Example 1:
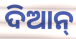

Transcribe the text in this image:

ଦିଆନ୍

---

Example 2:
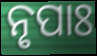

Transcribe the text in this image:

ନୃପାଃ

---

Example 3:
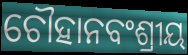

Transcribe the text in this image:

ଚୌହାନବଂଶ୍ରୀୟ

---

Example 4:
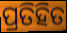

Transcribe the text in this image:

ପ୍ରତିହିତ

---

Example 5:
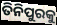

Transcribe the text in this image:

ତିନିପୁରକୁ